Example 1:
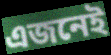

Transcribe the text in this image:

এজনেই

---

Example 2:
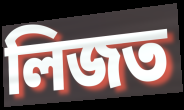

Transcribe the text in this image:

লিজত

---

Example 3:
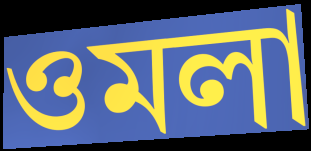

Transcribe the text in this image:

ওমলা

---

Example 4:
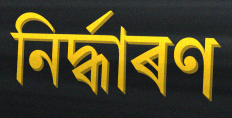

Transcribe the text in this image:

নিৰ্দ্ধাৰণ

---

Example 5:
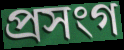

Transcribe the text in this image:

প্ৰসংগ